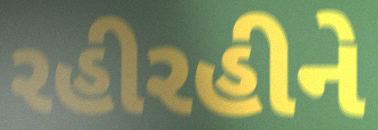
રહીરહીને